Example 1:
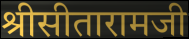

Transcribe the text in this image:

श्रीसीतारामजी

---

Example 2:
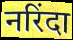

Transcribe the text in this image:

नरिंदा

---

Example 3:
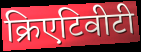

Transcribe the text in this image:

क्रिएटिवीटी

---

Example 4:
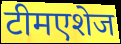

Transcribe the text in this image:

टीमएशेज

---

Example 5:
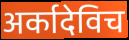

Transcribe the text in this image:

अर्कादेविच